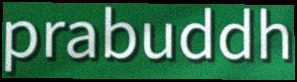
prabuddh